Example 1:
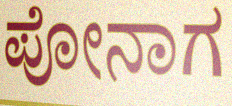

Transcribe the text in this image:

ಪೋನಾಗ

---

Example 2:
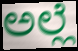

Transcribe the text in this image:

ಅಲ್ಲೆ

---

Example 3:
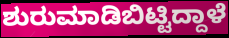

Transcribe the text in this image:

ಶುರುಮಾಡಿಬಿಟ್ಟಿದ್ದಾಳೆ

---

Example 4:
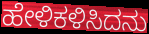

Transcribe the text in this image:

ಹೇಳಿಕಳಿಸಿದನು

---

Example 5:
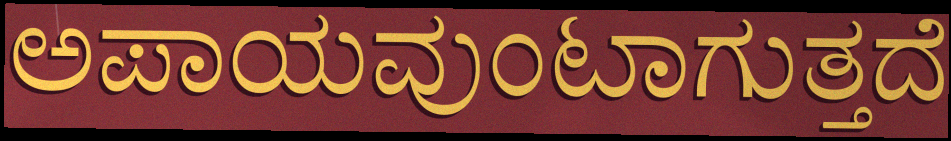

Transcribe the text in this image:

ಅಪಾಯವುಂಟಾಗುತ್ತದೆ